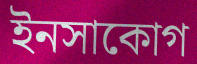
ইনসাকোগ